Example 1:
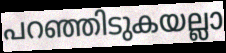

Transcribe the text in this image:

പറഞ്ഞിടുകയല്ലാ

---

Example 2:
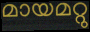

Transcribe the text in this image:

മായമറ്റു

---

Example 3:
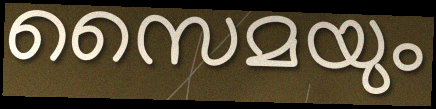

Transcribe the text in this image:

സൈമയും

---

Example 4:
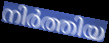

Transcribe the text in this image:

നിർത്തിയ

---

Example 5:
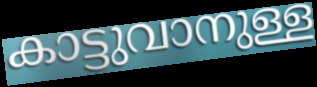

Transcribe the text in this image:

കാട്ടുവാനുള്ള